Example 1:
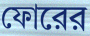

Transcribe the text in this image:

ফোরের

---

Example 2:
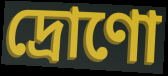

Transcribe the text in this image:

দ্রোণো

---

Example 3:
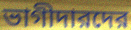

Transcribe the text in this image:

ভাগীদারদের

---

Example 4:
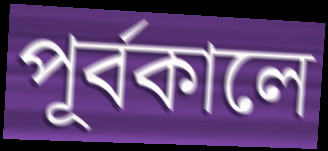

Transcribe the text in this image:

পূর্বকালে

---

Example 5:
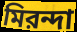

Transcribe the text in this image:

মিরন্দা